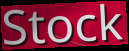
Stock